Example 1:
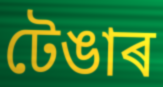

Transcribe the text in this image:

টেঙাৰ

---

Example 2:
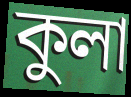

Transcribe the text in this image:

কুলা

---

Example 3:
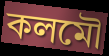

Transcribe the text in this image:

কলমৌ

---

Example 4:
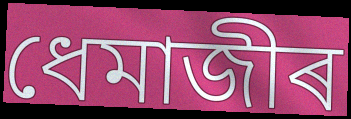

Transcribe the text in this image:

ধেমাজীৰ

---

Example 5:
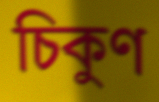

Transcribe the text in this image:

চিকুণ